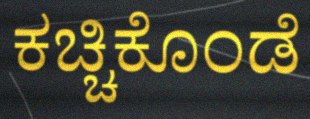
ಕಚ್ಚಿಕೊಂಡೆ